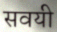
सवयी